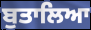
ਬੁਤਾਲਿਆ